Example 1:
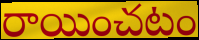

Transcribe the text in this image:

రాయించటం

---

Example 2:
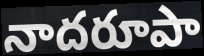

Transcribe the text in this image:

నాదరూపా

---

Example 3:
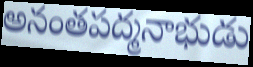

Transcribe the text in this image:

అనంతపద్మనాభుడు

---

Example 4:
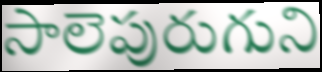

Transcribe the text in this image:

సాలెపురుగుని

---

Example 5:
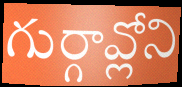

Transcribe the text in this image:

గుర్గావ్లోని